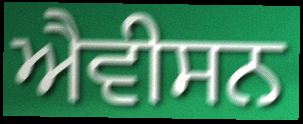
ਐਵੀਸਨ